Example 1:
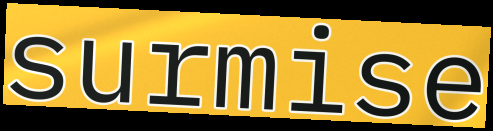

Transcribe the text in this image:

surmise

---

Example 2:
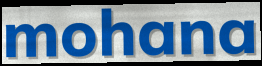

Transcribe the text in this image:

mohana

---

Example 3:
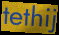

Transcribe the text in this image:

tethij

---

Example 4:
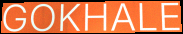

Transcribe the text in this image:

GOKHALE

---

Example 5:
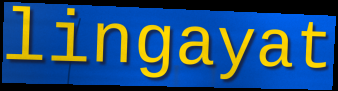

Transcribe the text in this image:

lingayat